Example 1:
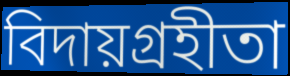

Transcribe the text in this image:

বিদায়গ্রহীতা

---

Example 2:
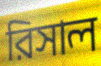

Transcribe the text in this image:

রিসাল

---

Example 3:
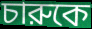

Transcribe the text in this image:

চারুকে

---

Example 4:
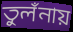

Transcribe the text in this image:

তুলঁনায়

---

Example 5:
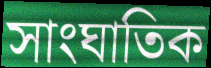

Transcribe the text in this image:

সাংঘাতিক